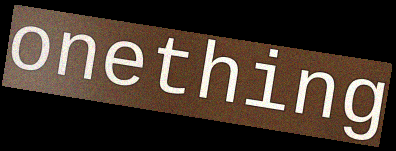
onething